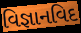
વિજ્ઞાનવિદ